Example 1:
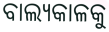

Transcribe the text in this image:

ବାଲ୍ୟକାଳକୁ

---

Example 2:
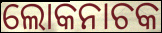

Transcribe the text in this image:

ଲୋକନାଚକ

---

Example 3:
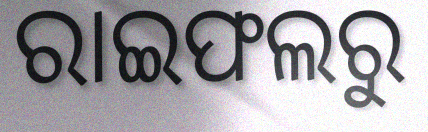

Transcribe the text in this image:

ରାଇଫଲରୁ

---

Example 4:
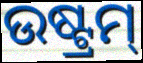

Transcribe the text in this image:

ଉଷ୍ଟ୍ରମ୍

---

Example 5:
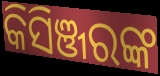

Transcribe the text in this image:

କିସିଞ୍ଜରଙ୍କ